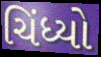
ચિંધ્યો